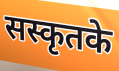
सस्कृतके